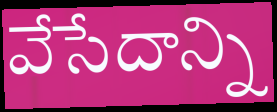
వేసేదాన్ని